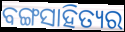
ବଙ୍ଗସାହିତ୍ୟର